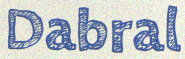
Dabral